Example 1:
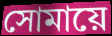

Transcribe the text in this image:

সোমায়ে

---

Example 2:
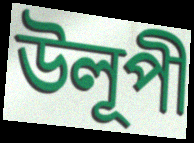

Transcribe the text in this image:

উলূপী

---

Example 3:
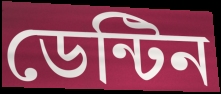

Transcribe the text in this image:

ডেন্টিন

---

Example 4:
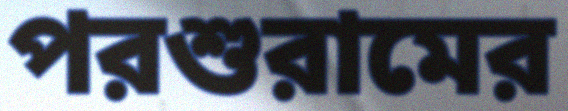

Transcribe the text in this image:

পরশুরামের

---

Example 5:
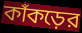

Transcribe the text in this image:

কাঁকড়ের